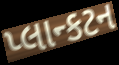
પ્લાન્કટન